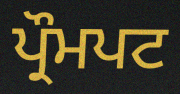
ਪ੍ਰੌਮਪਟ